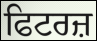
ਫਿਟਰਜ਼